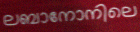
ലബാനോനിലെ